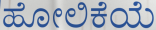
ಹೋಲಿಕೆಯೆ